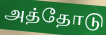
அத்தோடு